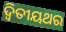
ଦ୍ବିତୀୟଥର